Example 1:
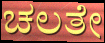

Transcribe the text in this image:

ಚಲತೇ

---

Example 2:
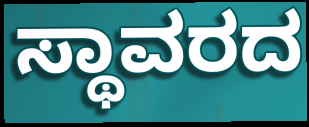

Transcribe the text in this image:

ಸ್ಥಾವರದ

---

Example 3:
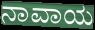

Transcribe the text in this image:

ನಾವಾಯ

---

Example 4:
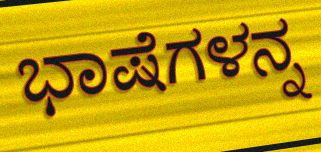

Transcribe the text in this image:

ಭಾಷೆಗಳನ್ನ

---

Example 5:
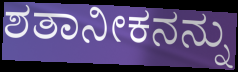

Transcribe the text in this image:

ಶತಾನೀಕನನ್ನು